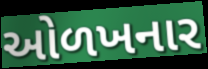
ઓળખનાર